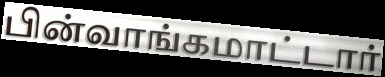
பின்வாங்கமாட்டார்